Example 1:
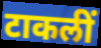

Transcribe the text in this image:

टाकलीं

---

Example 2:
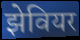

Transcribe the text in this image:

झेवियर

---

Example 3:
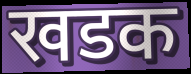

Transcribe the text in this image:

खडक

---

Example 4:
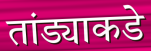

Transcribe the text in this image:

तांड्याकडे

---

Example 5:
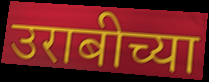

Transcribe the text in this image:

उराबीच्या